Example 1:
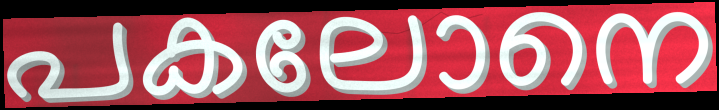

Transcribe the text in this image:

പകലോനെ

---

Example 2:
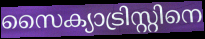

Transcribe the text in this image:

സൈക്യാട്രിസ്റ്റിനെ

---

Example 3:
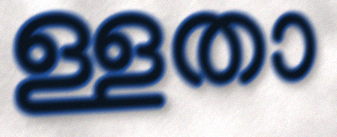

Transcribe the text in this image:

ള്ളതാ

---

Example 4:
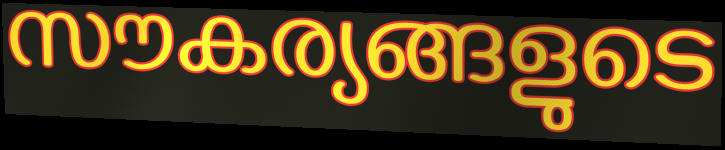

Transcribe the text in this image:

സൗകര്യങ്ങളുടെ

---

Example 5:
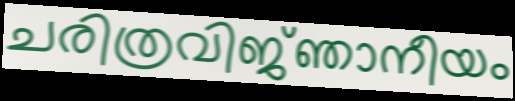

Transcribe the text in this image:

ചരിത്രവിജ്‌ഞാനീയം